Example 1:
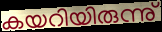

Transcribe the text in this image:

കയറിയിരുന്നു്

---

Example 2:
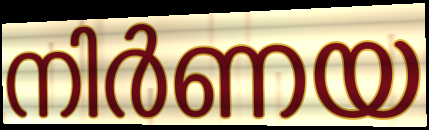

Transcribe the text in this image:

നിർണയ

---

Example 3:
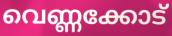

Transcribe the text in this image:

വെണ്ണക്കോട്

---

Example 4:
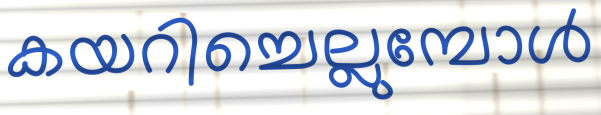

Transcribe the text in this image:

കയറിച്ചെല്ലുമ്പോൾ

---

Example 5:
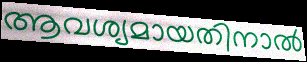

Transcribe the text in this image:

ആവശ്യമായതിനാൽ